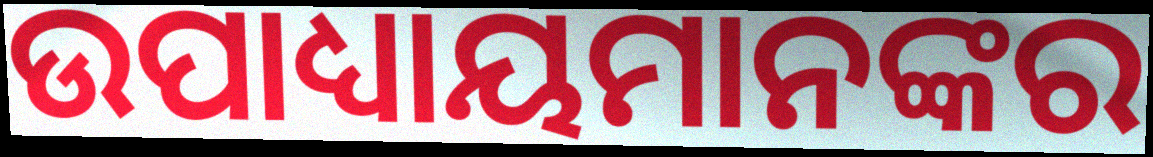
ଉପାଧ୍ୟାୟମାନଙ୍କର